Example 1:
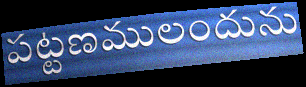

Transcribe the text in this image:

పట్టణములందును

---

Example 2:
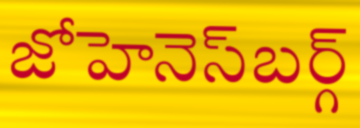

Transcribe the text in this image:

జోహెనెస్‍బర్గ్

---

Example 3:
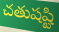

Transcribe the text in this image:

చతుషష్టి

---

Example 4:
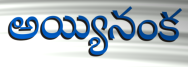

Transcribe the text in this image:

అయ్యినంక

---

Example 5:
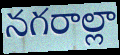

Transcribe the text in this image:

నగరాల్లా